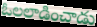
ఓలలాడించాడు